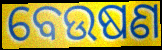
ବେଉଷଣ